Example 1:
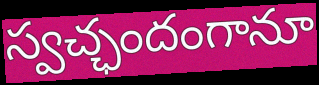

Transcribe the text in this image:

స్వచ్ఛందంగానూ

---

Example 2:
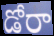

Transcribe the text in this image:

డోరా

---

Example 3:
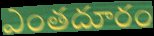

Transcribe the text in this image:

ఎంతదూరం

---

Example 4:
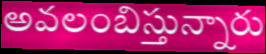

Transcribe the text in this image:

అవలంబిస్తున్నారు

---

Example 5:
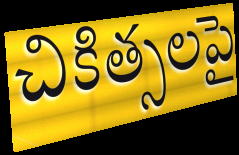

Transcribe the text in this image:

చికిత్సలపై